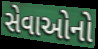
સેવાઓનો